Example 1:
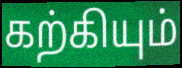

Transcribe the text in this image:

கற்கியும்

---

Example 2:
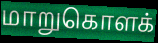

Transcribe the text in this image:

மாறுகொளக்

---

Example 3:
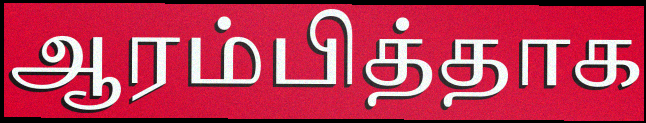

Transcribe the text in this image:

ஆரம்பித்தாக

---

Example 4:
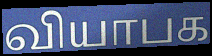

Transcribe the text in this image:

வியாபக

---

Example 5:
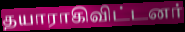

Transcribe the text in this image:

தயாராகிவிட்டனர்